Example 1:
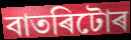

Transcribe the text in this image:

বাতৰিটোৰ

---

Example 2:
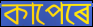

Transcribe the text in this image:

কাপেৰে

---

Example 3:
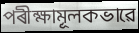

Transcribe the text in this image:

পৰীক্ষামূলকভাৱে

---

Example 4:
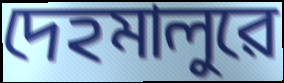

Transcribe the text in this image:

দেহমালুৱে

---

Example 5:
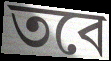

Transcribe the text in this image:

তবে